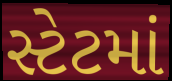
સ્ટેટમાં